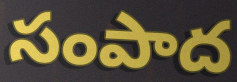
సంపాద